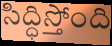
సిద్ధిస్తోంది